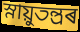
স্নায়ুতন্ত্ৰৰ